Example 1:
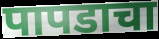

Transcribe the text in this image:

पापडाचा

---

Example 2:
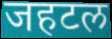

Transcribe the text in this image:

जहटल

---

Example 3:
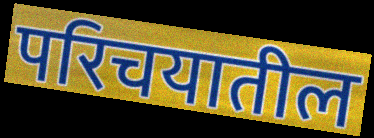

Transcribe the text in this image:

परिचयातील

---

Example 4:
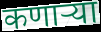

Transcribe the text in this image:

कणाऱ्या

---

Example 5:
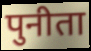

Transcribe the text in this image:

पुनीता